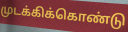
முடக்கிக்கொண்டு